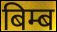
बिम्ब